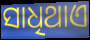
ସାଧିଥାଏ